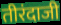
तीरंदाजी